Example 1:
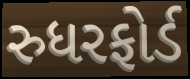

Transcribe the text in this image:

રુધરફોર્ડ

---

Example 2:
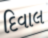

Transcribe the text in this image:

દિવાલ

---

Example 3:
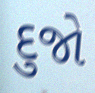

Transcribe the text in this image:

દુજો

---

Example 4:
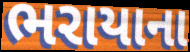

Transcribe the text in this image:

ભરાયાના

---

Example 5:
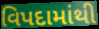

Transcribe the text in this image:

વિપદામાંથી